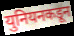
युनियनकडून